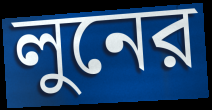
লুনের